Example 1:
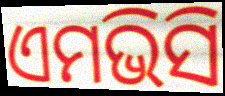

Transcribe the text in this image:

ଏମଭିସି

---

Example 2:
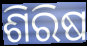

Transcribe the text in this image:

ଶିରିଷ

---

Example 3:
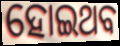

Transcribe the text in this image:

ହୋଇଥବ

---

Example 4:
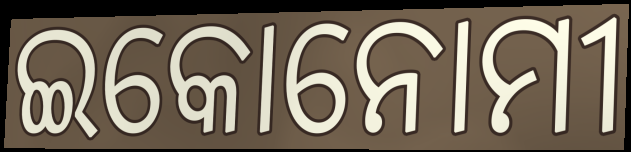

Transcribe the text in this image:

ଇକୋନୋମୀ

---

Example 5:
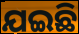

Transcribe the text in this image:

ଯଇଛି